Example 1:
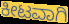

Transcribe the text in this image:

ಕೀಟವಾಗಿ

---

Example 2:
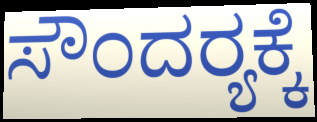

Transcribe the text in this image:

ಸೌಂದರ‍್ಯಕ್ಕೆ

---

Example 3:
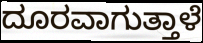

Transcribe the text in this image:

ದೂರವಾಗುತ್ತಾಳೆ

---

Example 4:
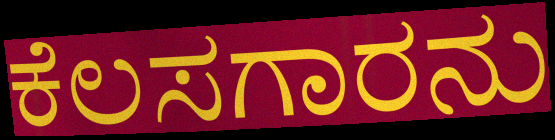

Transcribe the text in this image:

ಕೆಲಸಗಾರನು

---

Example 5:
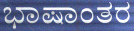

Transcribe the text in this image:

ಭಾಷಾಂತರ